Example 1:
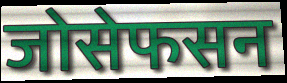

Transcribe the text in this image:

जोसेफसन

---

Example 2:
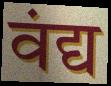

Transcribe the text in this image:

वंद्य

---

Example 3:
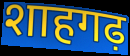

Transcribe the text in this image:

शाहगढ़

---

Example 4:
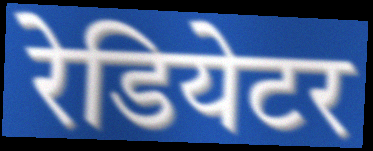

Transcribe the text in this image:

रेडियेटर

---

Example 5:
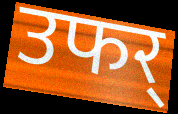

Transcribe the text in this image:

उफर्